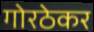
गोरठेकर